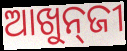
ଆଖୁନ୍‍ଜୀ